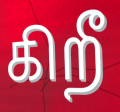
கிறீ